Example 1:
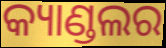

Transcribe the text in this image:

କ୍ୟାଣ୍ଡଲର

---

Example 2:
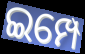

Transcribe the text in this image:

ଇମ୍ପେ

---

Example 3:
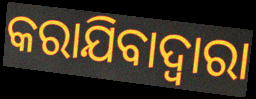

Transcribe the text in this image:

କରାଯିବାଦ୍ୱାରା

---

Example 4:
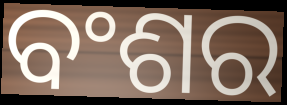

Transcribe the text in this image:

ବଂଶର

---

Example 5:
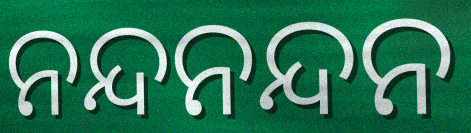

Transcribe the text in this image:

ନନ୍ଦନନ୍ଦନ